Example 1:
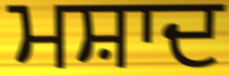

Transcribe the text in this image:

ਮਸ਼ਾਦ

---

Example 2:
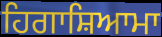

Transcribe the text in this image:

ਹਿਗਾਸ਼ਿਆਮਾ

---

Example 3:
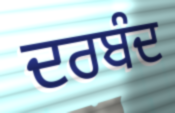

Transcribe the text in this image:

ਦਰਬੰਦ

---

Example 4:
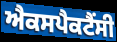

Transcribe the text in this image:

ਐਕਸਪੈਕਟੈਂਸੀ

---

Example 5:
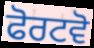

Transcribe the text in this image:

ਫੋਰਟਵੋ